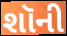
શૉની